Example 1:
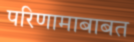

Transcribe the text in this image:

परिणामाबाबत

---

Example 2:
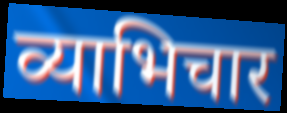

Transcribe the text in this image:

व्याभिचार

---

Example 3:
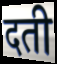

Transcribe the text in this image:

दती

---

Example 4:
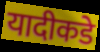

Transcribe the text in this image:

यादीकडे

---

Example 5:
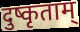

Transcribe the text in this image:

दुष्कृताम्